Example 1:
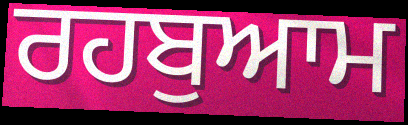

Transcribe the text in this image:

ਰਹਬੁਆਮ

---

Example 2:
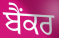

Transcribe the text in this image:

ਬੈਂਕਰ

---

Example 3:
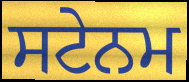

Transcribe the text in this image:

ਸਟੇਨਮ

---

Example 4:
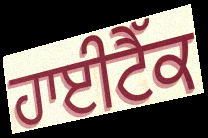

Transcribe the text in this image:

ਹਾਈਟੈੱਕ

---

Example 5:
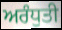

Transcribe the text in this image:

ਅਰੰਧੁਤੀ